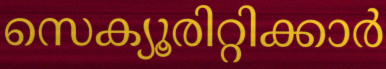
സെക്യൂരിറ്റിക്കാർ